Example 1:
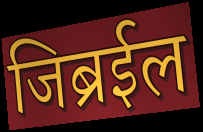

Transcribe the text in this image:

जिब्रईल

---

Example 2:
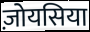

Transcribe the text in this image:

ज़ोयसिया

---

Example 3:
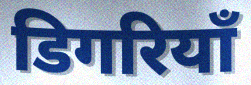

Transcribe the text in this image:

डिगरियाँ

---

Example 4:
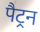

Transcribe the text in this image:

पैट्रन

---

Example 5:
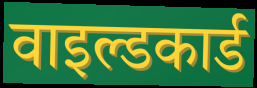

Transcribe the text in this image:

वाइल्डकार्ड